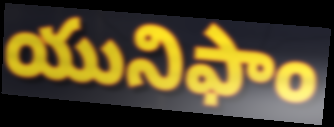
యునిఫాం